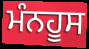
ਮੰਨਹੂਸ